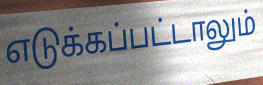
எடுக்கப்பட்டாலும்